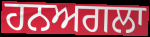
ਹਨਅਗਲਾ